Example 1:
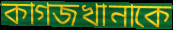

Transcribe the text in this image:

কাগজখানাকে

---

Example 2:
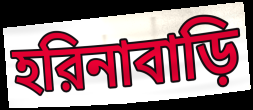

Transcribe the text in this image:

হরিনাবাড়ি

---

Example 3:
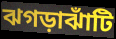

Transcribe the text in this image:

ঝগড়াঝাঁটি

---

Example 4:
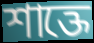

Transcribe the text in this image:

শাক্তে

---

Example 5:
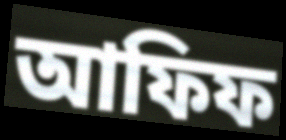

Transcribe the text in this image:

আফিফ